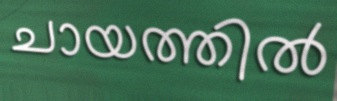
ചായത്തിൽ